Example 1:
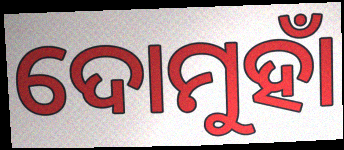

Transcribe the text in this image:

ଦୋମୁହାଁ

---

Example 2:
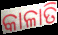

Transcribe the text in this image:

କାଳାତି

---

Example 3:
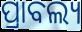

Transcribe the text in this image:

ପ୍ରାବଲ୍ୟ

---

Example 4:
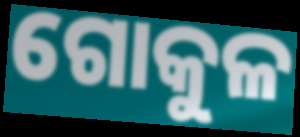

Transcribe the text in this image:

ଗୋକୁଳ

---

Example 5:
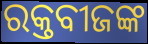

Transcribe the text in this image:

ରକ୍ତବୀଜଙ୍କ